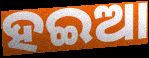
ହଇଆ